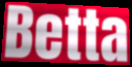
Betta